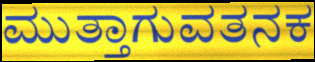
ಮುತ್ತಾಗುವತನಕ